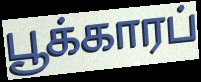
பூக்காரப்